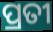
ପ୍ରତୀ